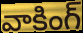
వాకింగ్